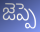
జెప్పె